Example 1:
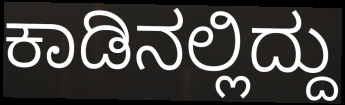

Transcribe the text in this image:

ಕಾಡಿನಲ್ಲಿದ್ದು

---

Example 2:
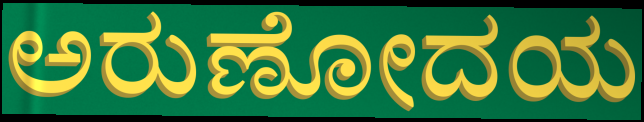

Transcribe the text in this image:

ಅರುಣೋದಯ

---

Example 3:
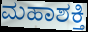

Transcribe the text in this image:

ಮಹಾಶಕ್ತಿ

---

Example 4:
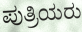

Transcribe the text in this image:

ಪುತ್ರಿಯರು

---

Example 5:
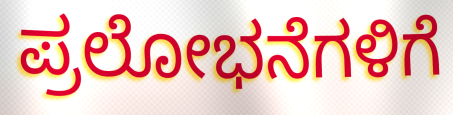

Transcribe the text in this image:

ಪ್ರಲೋಭನೆಗಳಿಗೆ